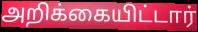
அறிக்கையிட்டார்